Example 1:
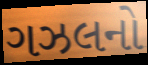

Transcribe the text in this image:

ગઝલનો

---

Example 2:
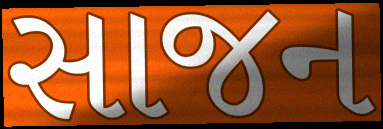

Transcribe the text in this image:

સાજન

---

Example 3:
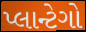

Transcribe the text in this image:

પ્લાન્ટેગો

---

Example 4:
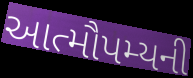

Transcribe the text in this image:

આત્મૌપમ્યની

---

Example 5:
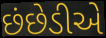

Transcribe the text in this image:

છંછેડીએ